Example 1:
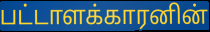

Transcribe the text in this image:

பட்டாளக்காரனின்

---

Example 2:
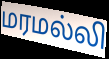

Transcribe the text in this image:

மரமல்லி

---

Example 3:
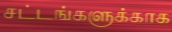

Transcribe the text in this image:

சட்டங்களுக்காக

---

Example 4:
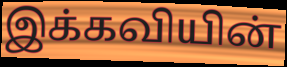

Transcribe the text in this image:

இக்கவியின்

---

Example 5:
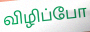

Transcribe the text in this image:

விழிப்போ